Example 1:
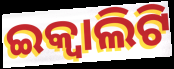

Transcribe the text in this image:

ଇକ୍ୱାଲିଟି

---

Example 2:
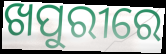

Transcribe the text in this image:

ଖପୁରୀରେ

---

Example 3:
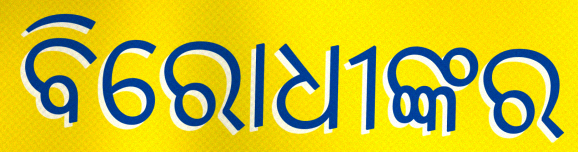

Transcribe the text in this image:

ବିରୋଧୀଙ୍କର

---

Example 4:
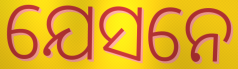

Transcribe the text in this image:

ଯେସନେ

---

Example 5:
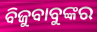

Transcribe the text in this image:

ବିଜୁବାବୁଙ୍କର